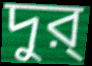
দুর্